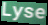
Lyse